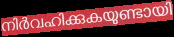
നിർവഹിക്കുകയുണ്ടായി